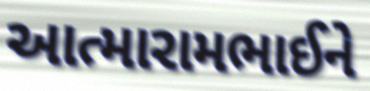
આત્મારામભાઈને